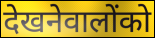
देखनेवालोंको